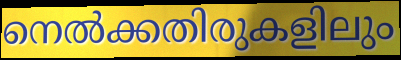
നെൽക്കതിരുകളിലും